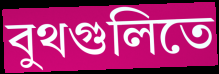
বুথগুলিতে